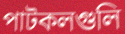
পাটকলগুলি